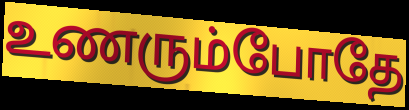
உணரும்போதே